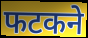
फटकने